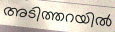
അടിത്തറയിൽ